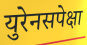
युरेनसपेक्षा